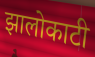
झालोकाटी